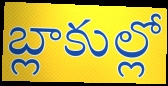
బ్లాకుల్లో